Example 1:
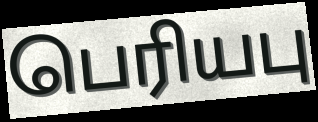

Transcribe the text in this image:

பெரியபு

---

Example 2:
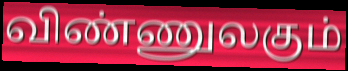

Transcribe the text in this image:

விண்ணுலகும்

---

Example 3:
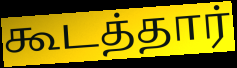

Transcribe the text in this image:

கூடத்தார்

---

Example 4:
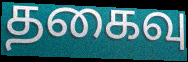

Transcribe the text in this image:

தகைவு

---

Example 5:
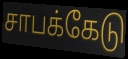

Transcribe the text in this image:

சாபக்கேடு